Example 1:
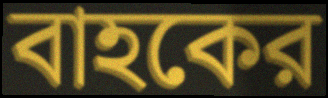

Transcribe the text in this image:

বাহকের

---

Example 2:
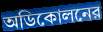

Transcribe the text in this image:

অডিকোলনের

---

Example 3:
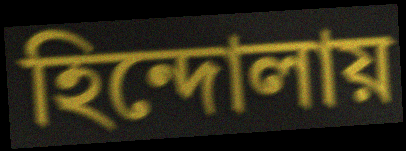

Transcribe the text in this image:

হিন্দোলায়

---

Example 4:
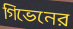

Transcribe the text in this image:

গিভেনের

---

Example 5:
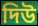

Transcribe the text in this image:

দিউ